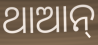
ଥାଆନ୍